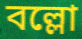
বল্লো